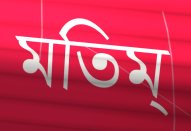
মতিম্